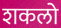
शकलो